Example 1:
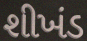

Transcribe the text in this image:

શીખંડ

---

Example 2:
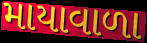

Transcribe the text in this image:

માયાવાળા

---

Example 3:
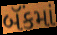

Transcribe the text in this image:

બૅંકમાં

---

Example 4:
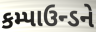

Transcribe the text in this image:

કમ્પાઉન્ડને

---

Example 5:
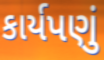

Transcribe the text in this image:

કાર્યપણું